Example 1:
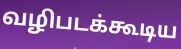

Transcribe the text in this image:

வழிபடக்கூடிய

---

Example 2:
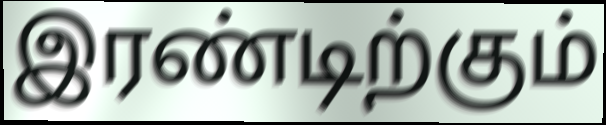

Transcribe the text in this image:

இரண்டிற்கும்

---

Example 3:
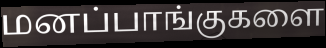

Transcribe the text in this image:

மனப்பாங்குகளை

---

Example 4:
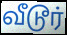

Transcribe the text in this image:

வீடூர்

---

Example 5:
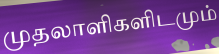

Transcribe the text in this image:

முதலாளிகளிடமும்